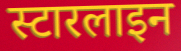
स्टारलाइन